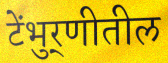
टेंभुर्णीतील